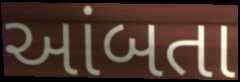
આંબતા